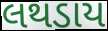
લથડાય